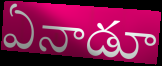
ఏనాడూ